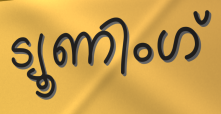
ട്യൂണിംഗ്